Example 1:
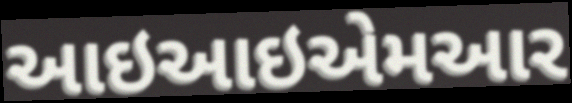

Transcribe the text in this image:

આઇઆઇએમઆર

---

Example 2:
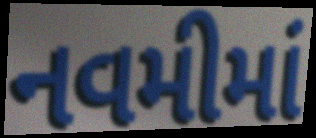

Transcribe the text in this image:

નવમીમાં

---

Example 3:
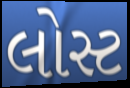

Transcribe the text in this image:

લોસ્ટ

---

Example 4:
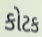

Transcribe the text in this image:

કોટક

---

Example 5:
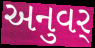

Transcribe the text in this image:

અનુવર્